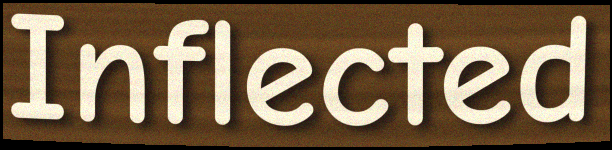
Inflected